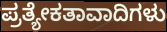
ಪ್ರತ್ಯೇಕತಾವಾದಿಗಳು